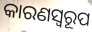
କାରଣସ୍ୱରୂପ